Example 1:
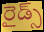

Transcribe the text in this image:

రైడ్స్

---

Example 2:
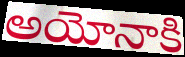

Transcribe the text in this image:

అయోనాకి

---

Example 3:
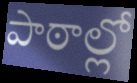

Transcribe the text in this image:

పాఠాల్లో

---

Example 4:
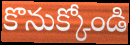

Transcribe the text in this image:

కొనుక్కోండి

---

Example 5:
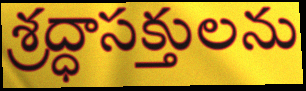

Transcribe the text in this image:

శ్రద్ధాసక్తులను